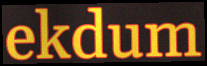
ekdum